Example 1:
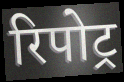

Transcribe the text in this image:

रिपोट्र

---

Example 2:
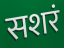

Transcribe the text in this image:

सशरं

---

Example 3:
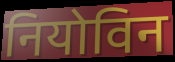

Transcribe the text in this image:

नियोविन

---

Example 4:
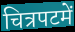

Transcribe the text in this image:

चित्रपटमें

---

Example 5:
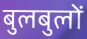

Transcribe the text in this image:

बुलबुलों